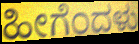
ಹೀಗೆಂದಳು